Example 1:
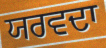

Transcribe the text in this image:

ਯਰਵਦਾ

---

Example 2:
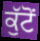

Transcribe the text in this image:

ਕੁੱਟੋਂ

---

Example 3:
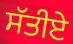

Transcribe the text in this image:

ਸੱਤੀਏ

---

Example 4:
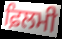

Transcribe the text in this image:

ਫ਼ਿਲਮੀ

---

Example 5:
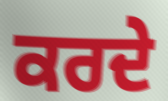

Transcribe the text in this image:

ਕਰਦੇ